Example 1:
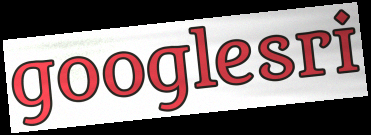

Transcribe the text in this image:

googlesri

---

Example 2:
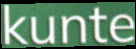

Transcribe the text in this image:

kunte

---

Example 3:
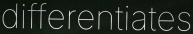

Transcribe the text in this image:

differentiates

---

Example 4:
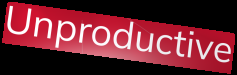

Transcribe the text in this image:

Unproductive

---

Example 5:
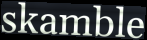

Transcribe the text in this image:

skamble